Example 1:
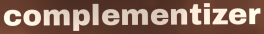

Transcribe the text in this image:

complementizer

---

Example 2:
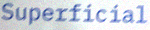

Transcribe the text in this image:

Superficial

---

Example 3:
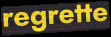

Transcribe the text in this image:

regrette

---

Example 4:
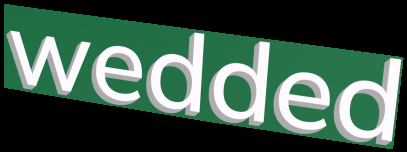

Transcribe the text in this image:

wedded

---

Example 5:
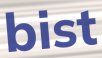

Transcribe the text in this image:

bist